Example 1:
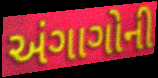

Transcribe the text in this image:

અંગાગોની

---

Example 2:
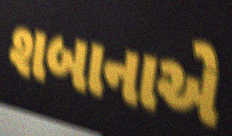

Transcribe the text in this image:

શબાનાએ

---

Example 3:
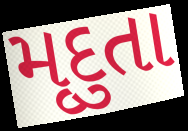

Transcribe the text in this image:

મૃદુતા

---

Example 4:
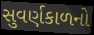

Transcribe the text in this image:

સુવર્ણકાળનો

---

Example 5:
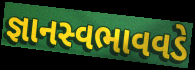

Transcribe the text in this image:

જ્ઞાનસ્વભાવવડે